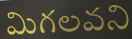
మిగలవని